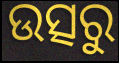
ଉତ୍ସରୁ